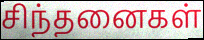
சிந்தனைகள்